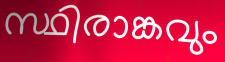
സ്ഥിരാങ്കവും